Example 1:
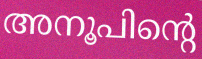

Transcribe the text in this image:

അനൂപിന്റെ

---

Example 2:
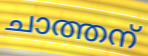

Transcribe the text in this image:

ചാത്തന്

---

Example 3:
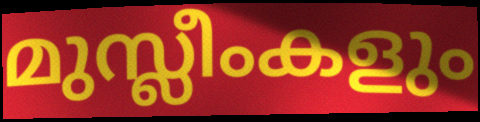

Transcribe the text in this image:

മുസ്ലീംകളും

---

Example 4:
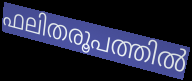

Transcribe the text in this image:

ഫലിതരൂപത്തിൽ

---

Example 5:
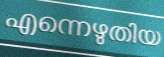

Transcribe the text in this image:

എന്നെഴുതിയ